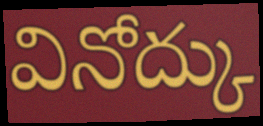
వినోద్కు